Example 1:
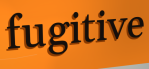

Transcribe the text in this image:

fugitive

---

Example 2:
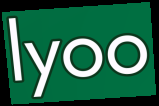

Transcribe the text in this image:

lyoo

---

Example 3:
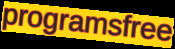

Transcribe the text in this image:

programsfree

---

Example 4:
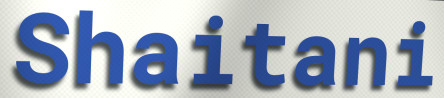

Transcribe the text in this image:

Shaitani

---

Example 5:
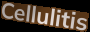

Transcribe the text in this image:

Cellulitis